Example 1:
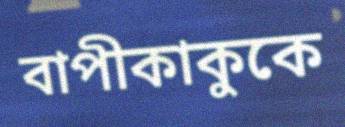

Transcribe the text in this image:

বাপীকাকুকে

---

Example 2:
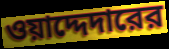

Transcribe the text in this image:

ওয়াদ্দেদারের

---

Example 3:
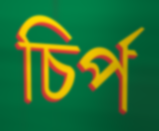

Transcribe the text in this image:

চির্প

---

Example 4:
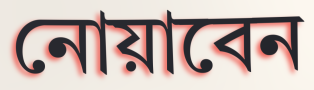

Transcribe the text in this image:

নোয়াবেন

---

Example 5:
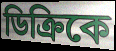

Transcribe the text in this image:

ডিক্রিকে